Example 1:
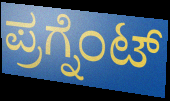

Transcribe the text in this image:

ಪ್ರಗ್ನೆಂಟ್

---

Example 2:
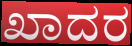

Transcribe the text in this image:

ಖಾದರ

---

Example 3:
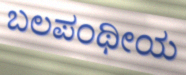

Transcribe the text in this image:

ಬಲಪಂಥೀಯ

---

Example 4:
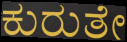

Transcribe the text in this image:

ಕುರುತೇ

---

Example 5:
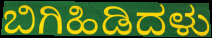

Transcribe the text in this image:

ಬಿಗಿಹಿಡಿದಳು